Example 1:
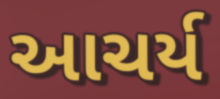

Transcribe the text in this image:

આચર્ય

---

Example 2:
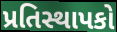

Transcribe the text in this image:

પ્રતિસ્થાપકો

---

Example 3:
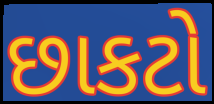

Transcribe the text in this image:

છાકટો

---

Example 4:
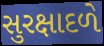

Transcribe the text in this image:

સુરક્ષાદળે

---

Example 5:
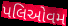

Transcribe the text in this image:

પલિઓવમ